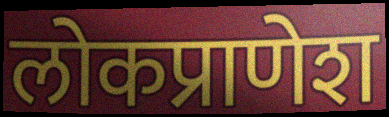
लोकप्राणेश